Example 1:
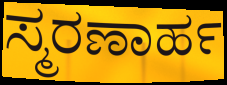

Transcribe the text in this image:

ಸ್ಮರಣಾರ್ಹ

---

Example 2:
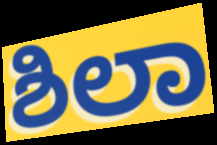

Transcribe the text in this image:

ಶಿಲಾ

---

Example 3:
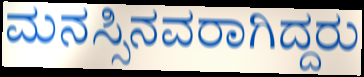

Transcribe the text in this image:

ಮನಸ್ಸಿನವರಾಗಿದ್ದರು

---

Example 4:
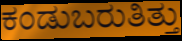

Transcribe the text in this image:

ಕಂಡುಬರುತಿತ್ತು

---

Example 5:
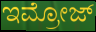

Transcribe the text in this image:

ಇಮ್ರೋಜ್